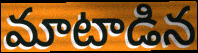
మాటాడిన